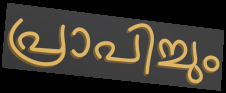
പ്രാപിച്ചും